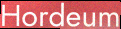
Hordeum